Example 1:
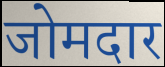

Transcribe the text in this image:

जोमदार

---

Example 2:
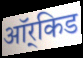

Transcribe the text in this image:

ऑर्किड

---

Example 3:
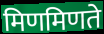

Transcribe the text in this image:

मिणमिणते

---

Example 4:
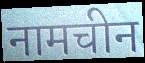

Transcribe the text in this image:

नामचीन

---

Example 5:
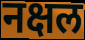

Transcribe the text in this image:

नक्षल